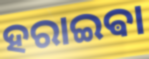
ହରାଇଵା